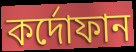
কর্দোফান